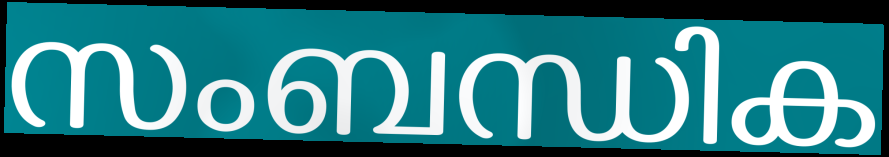
സംബന്ധിക